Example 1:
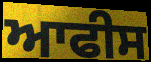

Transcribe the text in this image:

ਆਫੀਸ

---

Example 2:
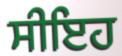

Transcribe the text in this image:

ਸੀਇਹ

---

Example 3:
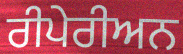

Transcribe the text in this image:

ਰੀਪੇਰੀਅਨ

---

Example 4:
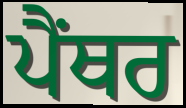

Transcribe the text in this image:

ਪੈੰਥਰ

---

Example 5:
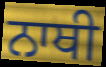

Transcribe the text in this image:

ਨਾਥੀ